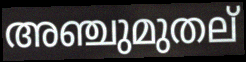
അഞ്ചുമുതല്